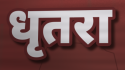
धृतरा